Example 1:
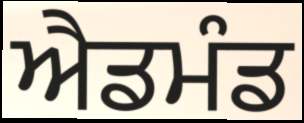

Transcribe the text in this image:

ਐਡਮੰਡ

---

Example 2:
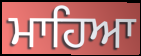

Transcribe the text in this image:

ਮਾਹਿਆ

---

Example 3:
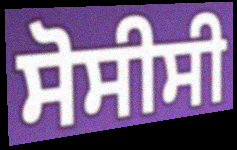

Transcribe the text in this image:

ਸੋਸੀਸੀ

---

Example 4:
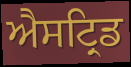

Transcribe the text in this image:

ਐਸਟ੍ਰਿਡ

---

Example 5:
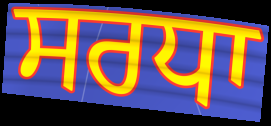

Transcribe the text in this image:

ਸਰਧਾ